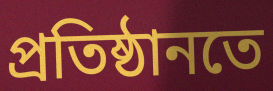
প্ৰতিষ্ঠানতে